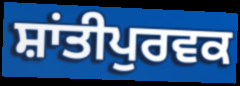
ਸ਼ਾਂਤੀਪੁਰਵਕ